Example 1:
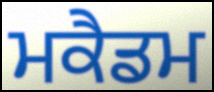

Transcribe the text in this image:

ਮਕੈਡਮ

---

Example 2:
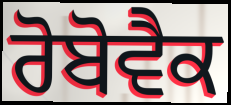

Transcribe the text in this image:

ਰੋਬੋਵੈਕ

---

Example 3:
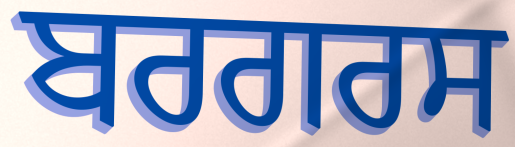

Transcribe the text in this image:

ਬਰਗਰਸ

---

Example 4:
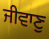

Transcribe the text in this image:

ਜੀਵਾਣੁ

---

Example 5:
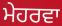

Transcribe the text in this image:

ਮੇਹਰਵਾ